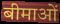
बीमाओं